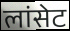
लांसेट